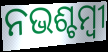
ନଭଶ୍ଚମ୍ବୀ